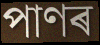
পাণৰ